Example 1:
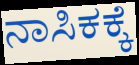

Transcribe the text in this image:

ನಾಸಿಕಕ್ಕೆ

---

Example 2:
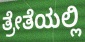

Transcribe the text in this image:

ತ್ರೇತೆಯಲ್ಲಿ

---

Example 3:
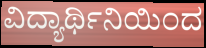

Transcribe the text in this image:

ವಿದ್ಯಾರ್ಥಿನಿಯಿಂದ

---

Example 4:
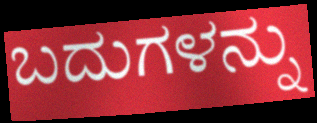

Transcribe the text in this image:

ಬದುಗಳನ್ನು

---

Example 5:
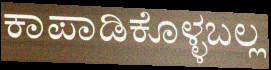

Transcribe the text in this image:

ಕಾಪಾಡಿಕೊಳ್ಳಬಲ್ಲ